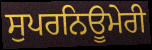
ਸੁਪਰਨਿਊਮੇਰੀ